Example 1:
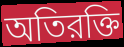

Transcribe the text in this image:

অতিরক্তি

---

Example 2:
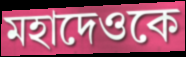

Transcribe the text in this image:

মহাদেওকে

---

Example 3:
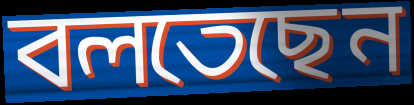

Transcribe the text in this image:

বলতেছেন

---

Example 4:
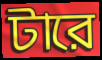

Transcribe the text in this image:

টারে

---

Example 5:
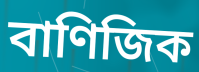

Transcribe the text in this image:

বাণিজিক